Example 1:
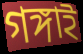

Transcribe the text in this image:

গঙ্গাই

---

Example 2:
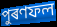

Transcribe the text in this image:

পুৰণফল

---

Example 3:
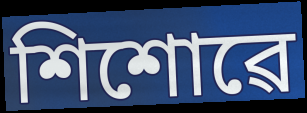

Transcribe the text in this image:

শিশোৱে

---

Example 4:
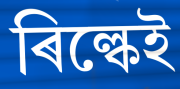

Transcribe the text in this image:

ৰিল্কেই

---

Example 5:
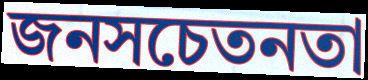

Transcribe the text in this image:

জনসচেতনতা